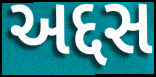
અદ્દસ